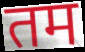
तम